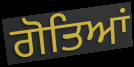
ਗੋਤਿਆਂ